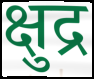
क्षुद्र